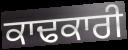
ਕਾਢਕਾਰੀ